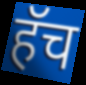
हॅच